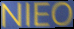
NIEO